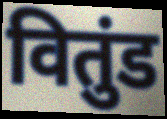
वितुंड